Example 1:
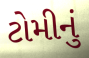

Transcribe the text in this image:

ટોમીનું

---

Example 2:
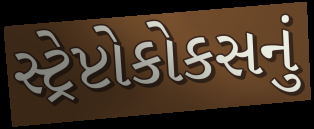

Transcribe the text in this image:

સ્ટ્રેપ્ટોકોકસનું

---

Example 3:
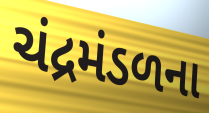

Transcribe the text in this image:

ચંદ્રમંડળના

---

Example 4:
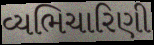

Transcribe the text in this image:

વ્યભિચારિણી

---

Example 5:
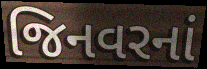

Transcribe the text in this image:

જિનવરનાં